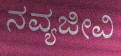
ನವ್ಯಜೀವಿ